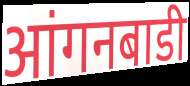
आंगनबाडी